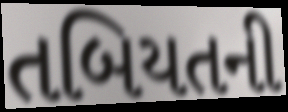
તબિયતની